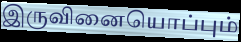
இருவினையொப்பும்